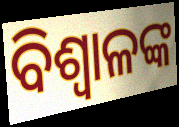
ବିଶ୍ୱାଳଙ୍କ